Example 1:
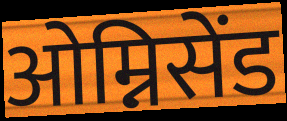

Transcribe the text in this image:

ओम्निसेंड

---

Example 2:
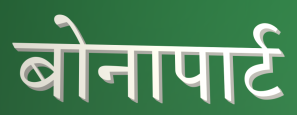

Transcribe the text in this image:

बोनापार्ट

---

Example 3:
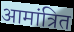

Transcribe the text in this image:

आमांत्रित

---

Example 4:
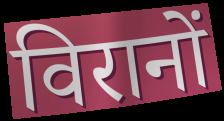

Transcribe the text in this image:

विरानों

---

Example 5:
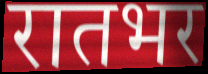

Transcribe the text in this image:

रातभर